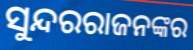
ସୁନ୍ଦରରାଜନଙ୍କର